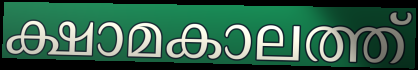
ക്ഷാമകാലത്ത്